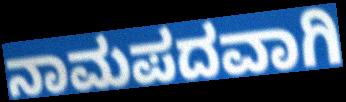
ನಾಮಪದವಾಗಿ